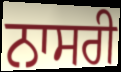
ਨਾਸਰੀ